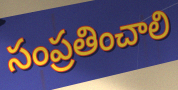
సంప్రతించాలి